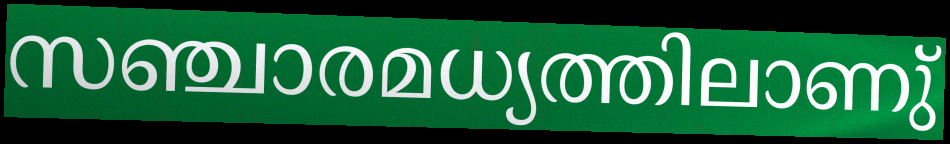
സഞ്ചാരമധ്യത്തിലാണു്